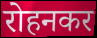
रोहनकर